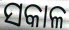
ସକାଳ